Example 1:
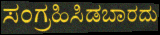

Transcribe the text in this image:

ಸಂಗ್ರಹಿಸಿಡಬಾರದು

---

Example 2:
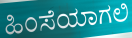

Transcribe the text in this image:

ಹಿಂಸೆಯಾಗಲಿ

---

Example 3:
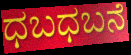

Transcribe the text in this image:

ಧಬಧಬನೆ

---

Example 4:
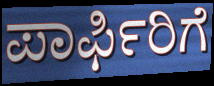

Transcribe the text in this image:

ಪಾರ್ಫಿರಿಗೆ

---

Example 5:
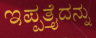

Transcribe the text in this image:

ಇಪ್ಪತ್ತೈದನ್ನು